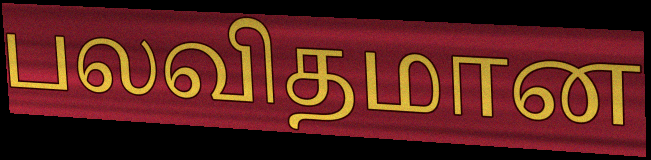
பலவிதமான